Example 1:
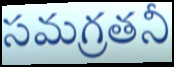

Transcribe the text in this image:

సమగ్రతనీ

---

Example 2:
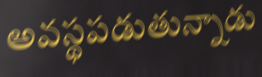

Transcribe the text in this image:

అవస్థపడుతున్నాడు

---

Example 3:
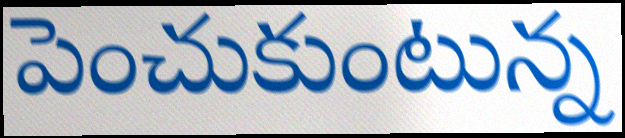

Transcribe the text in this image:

పెంచుకుంటున్న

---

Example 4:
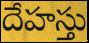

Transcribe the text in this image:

దేహస్తు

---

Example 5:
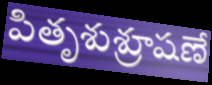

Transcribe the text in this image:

పితృశుశ్రూషణే